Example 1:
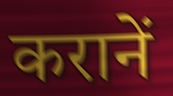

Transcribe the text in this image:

करानें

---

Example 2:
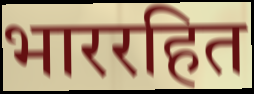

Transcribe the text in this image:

भाररहित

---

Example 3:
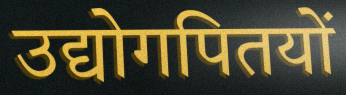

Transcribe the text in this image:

उद्योगपितयों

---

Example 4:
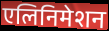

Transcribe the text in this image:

एलिनिमेशन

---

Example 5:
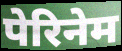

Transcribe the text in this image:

पेरिनेम